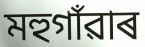
মহুগাঁৱাৰ